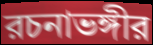
রচনাভঙ্গীর